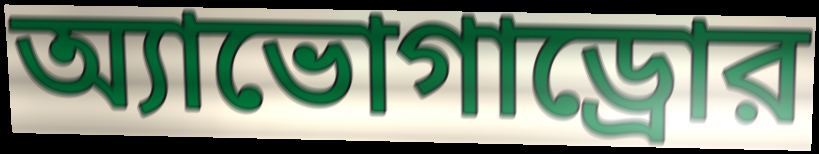
অ্যাভোগাড্রোর